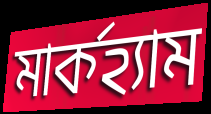
মার্কহ্যাম